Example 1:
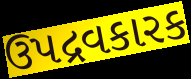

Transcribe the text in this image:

ઉપદ્રવકારક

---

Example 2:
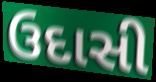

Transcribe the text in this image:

ઉદાસી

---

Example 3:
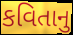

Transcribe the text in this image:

કવિતાનુ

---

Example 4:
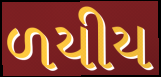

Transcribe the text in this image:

ળયીય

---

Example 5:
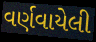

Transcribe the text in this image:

વર્ણવાયેલી